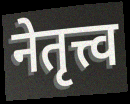
नेतृत्त्व